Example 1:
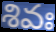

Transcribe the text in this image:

శివః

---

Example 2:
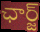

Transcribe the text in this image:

ఛార్జ్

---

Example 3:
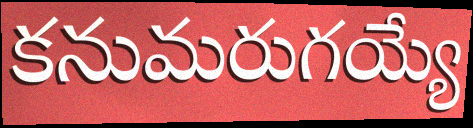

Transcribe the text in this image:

కనుమరుగయ్యే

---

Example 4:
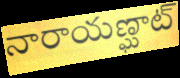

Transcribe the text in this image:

నారాయణ్ఘాట్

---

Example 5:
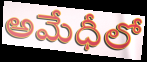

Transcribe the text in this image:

అమేధీలో